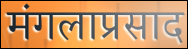
मंगलाप्रसाद